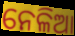
ନେଳିଆ